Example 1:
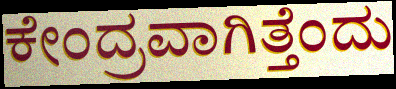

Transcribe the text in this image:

ಕೇಂದ್ರವಾಗಿತ್ತೆಂದು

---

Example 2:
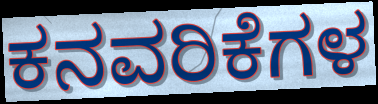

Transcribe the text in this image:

ಕನವರಿಕೆಗಳ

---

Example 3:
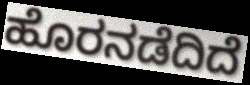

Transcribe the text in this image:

ಹೊರನಡೆದಿದೆ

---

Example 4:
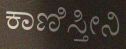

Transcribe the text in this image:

ಕಾಣಿಸ್ತೀನಿ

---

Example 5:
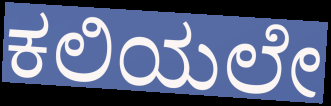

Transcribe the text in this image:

ಕಲಿಯಲೇ